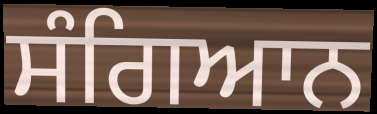
ਸੰਗਿਆਨ